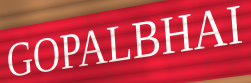
GOPALBHAI